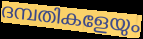
ദമ്പതികളേയും